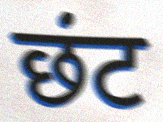
छंट